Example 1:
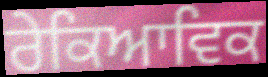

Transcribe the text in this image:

ਰੇਕਿਆਵਿਕ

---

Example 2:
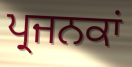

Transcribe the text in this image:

ਪ੍ਰਜਨਕਾਂ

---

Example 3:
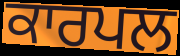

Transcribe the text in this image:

ਕਾਰਪਲ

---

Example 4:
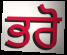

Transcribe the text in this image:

ਭਰੋ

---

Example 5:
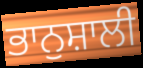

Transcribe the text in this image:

ਭਾਨੁਸ਼ਾਲੀ